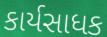
કાર્યસાધક